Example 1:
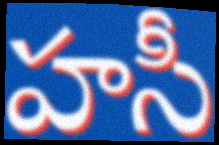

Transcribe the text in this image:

హసీ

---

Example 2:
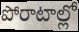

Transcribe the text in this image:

పోరాటాల్లో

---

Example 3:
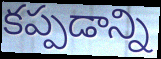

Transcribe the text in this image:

కప్పడాన్ని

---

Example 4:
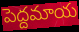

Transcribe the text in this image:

పెద్దమాయ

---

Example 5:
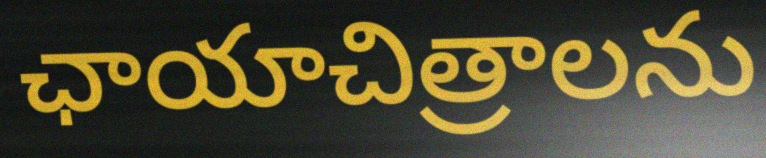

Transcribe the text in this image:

ఛాయాచిత్రాలను